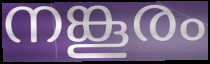
നങ്കൂരം